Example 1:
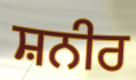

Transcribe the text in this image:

ਸ਼ਨੀਰ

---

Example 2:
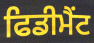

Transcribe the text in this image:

ਫਿਡੀਮੈਂਟ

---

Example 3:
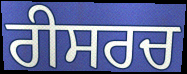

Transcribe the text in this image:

ਰੀਸਰਚ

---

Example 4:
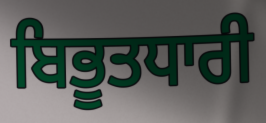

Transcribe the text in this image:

ਬਿਭੂਤਧਾਰੀ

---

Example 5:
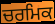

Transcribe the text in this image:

ਚਰਮਿਕ